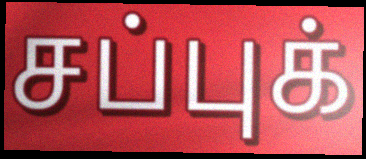
சப்புக்